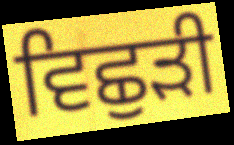
ਵਿਛੁੜੀ